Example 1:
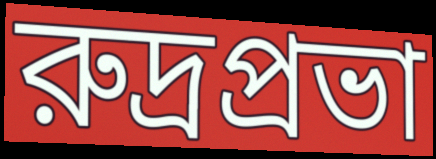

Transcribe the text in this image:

রুদ্রপ্রভা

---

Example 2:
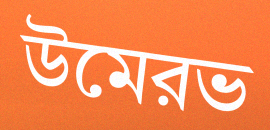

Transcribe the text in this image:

উমেরভ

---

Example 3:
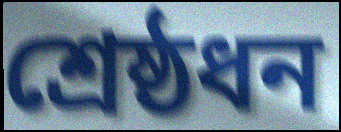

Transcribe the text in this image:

শ্রেষ্ঠধন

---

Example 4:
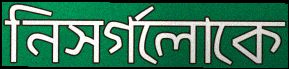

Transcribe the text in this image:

নিসর্গলোকে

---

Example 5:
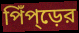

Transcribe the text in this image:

পিঁপ্ড়ের